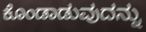
ಕೊಂಡಾಡುವುದನ್ನು